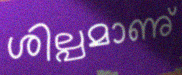
ശില്പമാണു്